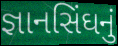
જ્ઞાનસિંઘનું